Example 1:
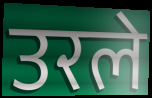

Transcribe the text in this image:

उरले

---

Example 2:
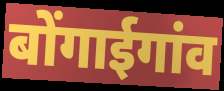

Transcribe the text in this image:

बोंगाईगांव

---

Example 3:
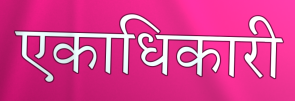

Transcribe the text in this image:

एकाधिकारी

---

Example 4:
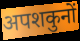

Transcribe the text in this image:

अपशकुनों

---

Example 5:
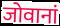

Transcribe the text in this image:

जोवानां